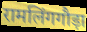
रामलिंगगौड़ा